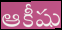
ఆకీషు